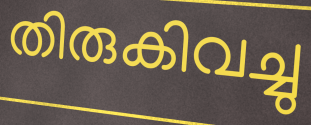
തിരുകിവച്ചു